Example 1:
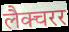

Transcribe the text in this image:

लैक्चरर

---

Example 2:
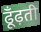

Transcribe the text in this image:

ढूँढ़ती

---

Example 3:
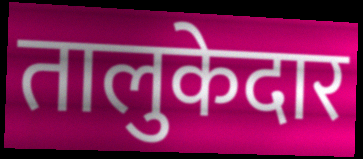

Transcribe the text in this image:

तालुकेदार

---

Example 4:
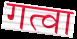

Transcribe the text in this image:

गत्वा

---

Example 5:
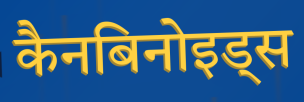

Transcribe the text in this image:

कैनबिनोइड्स